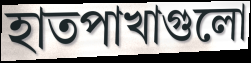
হাতপাখাগুলো